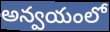
అన్వయంలో